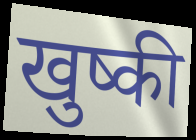
खुष्की